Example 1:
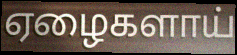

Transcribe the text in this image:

ஏழைகளாய்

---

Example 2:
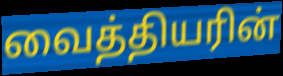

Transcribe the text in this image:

வைத்தியரின்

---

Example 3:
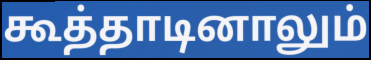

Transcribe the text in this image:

கூத்தாடினாலும்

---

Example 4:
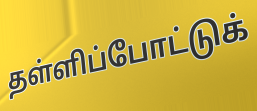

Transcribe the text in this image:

தள்ளிப்போட்டுக்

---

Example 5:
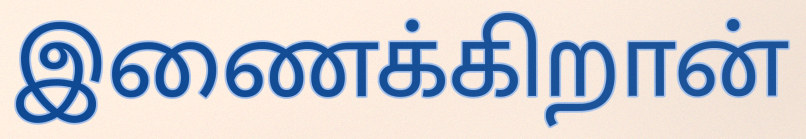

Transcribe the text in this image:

இணைக்கிறான்